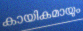
കായികമായും